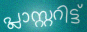
പ്ലാസ്റ്ററിട്ട്